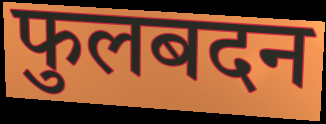
फुलबदन